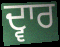
ਦ੍ਵਾਰ